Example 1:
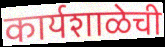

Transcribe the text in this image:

कार्यशाळेची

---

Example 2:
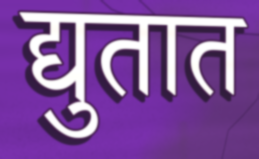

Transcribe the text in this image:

द्युतात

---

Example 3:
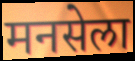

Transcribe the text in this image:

मनसेला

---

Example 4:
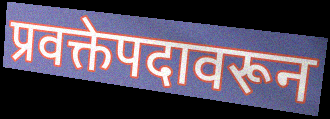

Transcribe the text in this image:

प्रवक्तेपदावरून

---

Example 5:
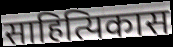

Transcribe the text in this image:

साहित्यिकास